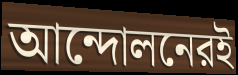
আন্দোলনেরই